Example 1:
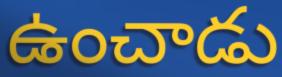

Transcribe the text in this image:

ఉంచాడు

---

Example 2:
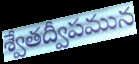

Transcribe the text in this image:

శ్వేతద్వీపమున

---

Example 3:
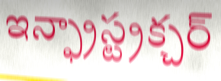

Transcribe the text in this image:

ఇన్ఫ్రాస్ట్రక్చర్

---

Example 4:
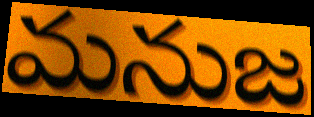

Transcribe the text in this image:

మనుజ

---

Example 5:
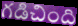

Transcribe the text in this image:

గడిచింది